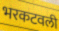
भरकटवली